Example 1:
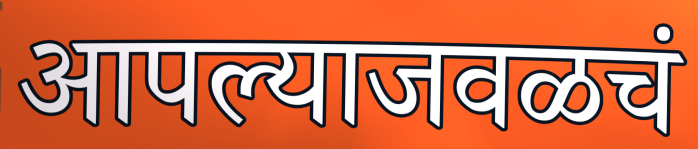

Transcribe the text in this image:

आपल्याजवळचं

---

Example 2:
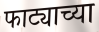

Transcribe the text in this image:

फाट्याच्या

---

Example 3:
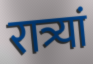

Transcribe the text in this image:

रात्र्यां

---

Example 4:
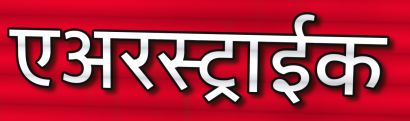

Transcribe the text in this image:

एअरस्ट्राईक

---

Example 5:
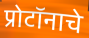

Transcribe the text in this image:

प्रोटॉनाचे